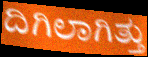
ದಿಗಿಲಾಗಿತ್ತು